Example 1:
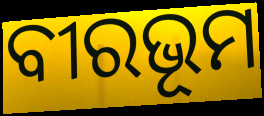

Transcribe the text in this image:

ବୀରଭୂମ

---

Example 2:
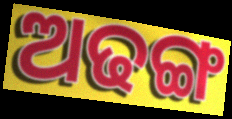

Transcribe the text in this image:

ଅଢଙ୍ଗ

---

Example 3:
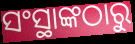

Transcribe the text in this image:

ସଂସ୍ଥାଙ୍କଠାରୁ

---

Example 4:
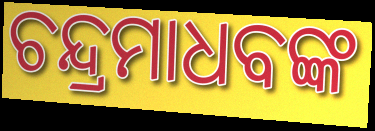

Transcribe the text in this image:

ଚନ୍ଦ୍ରମାଧବଙ୍କ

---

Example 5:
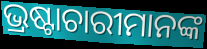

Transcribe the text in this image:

ଭ୍ରଷ୍ଟାଚାରୀମାନଙ୍କ